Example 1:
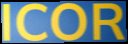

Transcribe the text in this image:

ICOR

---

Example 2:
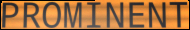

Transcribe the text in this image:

PROMINENT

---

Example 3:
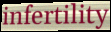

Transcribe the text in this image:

infertility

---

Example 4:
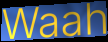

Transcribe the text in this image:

Waah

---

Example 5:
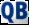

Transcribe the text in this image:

QB